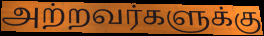
அற்றவர்களுக்கு